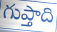
గుప్తాది